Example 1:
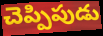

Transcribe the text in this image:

చెప్పిపుడు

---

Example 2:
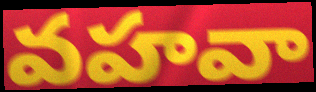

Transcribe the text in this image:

వహవా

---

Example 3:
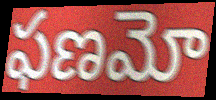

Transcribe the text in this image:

ఫణమో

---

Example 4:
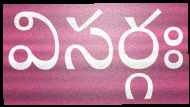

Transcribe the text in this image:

విసర్గః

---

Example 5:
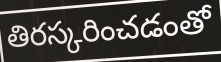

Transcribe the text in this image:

తిరస్కరించడంతో